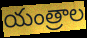
యంత్రాల